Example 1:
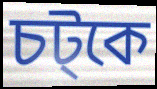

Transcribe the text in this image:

চট্‌কে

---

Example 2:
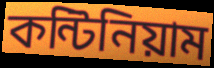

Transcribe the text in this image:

কন্টিনিয়াম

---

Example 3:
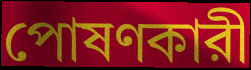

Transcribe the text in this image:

পোষণকারী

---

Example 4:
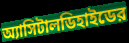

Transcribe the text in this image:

অ্যাসিটালডিহাইডের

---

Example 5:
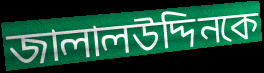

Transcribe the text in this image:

জালালউদ্দিনকে